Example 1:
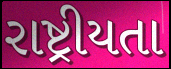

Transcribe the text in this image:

રાષ્ટ્રીયતા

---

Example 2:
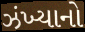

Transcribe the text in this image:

ઝંખ્યાનો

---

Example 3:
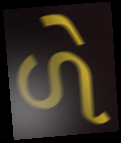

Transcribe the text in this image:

ળે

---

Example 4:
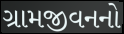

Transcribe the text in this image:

ગ્રામજીવનનો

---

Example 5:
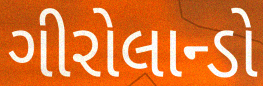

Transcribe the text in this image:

ગીરોલાન્ડો